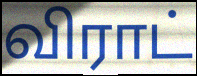
விராட்